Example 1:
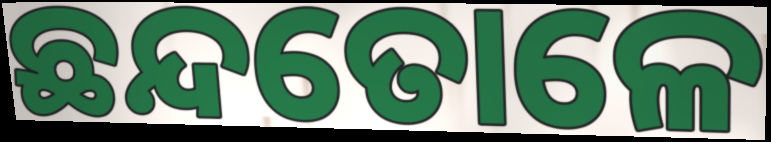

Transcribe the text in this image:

ଛନ୍ଦତୋଳେ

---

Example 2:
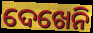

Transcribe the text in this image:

ଦେଖେନି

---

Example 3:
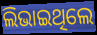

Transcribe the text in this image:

ଲିଭାଇଥିଲେ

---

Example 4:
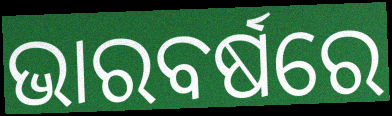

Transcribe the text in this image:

ଭାରବର୍ଷରେ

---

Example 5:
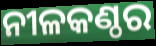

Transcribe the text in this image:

ନୀଳକଣ୍ଠର